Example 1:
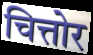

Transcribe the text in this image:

चित्तोर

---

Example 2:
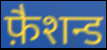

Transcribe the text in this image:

फ़ैशन्ड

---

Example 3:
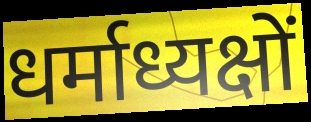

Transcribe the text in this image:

धर्माध्यक्षों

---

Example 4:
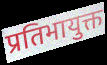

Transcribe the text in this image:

प्रतिभायुक्त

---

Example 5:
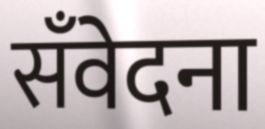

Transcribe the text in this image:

सँवेदना